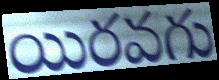
యిరవగు